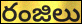
రంజిలు